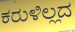
ಕರುಳಿಲ್ಲದ